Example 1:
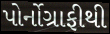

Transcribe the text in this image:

પોર્નોગ્રાફીથી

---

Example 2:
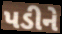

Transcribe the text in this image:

પડીને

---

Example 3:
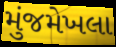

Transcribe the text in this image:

મુંજમેખલા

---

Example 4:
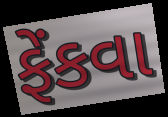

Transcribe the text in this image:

ફેંકવા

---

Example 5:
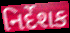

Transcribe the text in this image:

નિર્દેશક